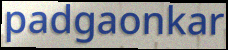
padgaonkar